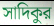
সাদিকুর